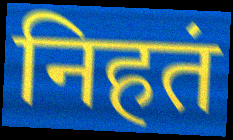
निहतं